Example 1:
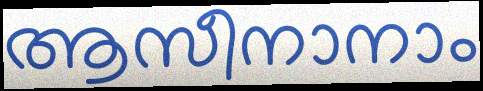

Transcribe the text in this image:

ആസീനാനാം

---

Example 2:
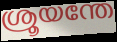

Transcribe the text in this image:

ശ്രൂയന്തേ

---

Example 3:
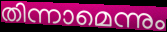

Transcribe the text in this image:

തിന്നാമെന്നും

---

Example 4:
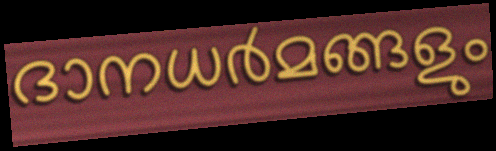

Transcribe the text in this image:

ദാനധർമങ്ങളും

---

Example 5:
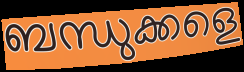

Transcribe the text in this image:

ബന്ധുക്കളെ